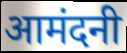
आमंदनी